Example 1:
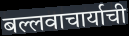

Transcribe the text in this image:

बल्लवाचार्याची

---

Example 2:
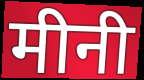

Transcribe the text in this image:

मीनी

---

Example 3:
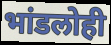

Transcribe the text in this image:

भांडलोही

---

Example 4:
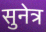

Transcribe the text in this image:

सुनेत्र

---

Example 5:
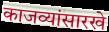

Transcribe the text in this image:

काजव्यांसारखे